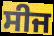
ਸੀਜ